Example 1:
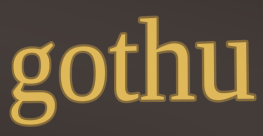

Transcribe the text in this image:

gothu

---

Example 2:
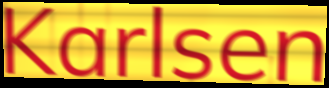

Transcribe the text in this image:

Karlsen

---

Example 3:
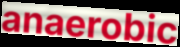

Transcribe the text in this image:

anaerobic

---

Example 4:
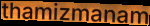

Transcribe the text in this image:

thamizmanam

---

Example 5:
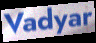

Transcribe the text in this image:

Vadyar